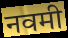
नवमी